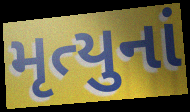
મૃત્યુનાં